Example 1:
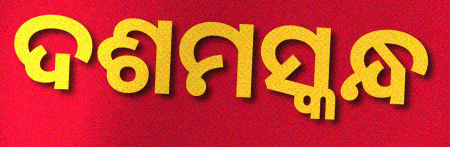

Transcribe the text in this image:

ଦଶମସ୍କନ୍ଧ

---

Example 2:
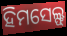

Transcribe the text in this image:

ହିମସେଲ୍ଫ୍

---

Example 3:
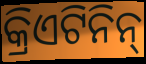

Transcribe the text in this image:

କ୍ରିଏଟିନିନ୍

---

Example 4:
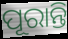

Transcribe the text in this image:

ପୂରାନ୍ତି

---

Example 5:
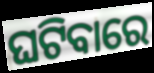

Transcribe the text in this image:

ଘଟିବାରେ